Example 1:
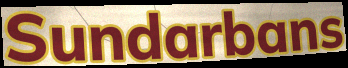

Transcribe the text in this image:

Sundarbans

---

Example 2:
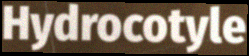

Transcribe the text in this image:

Hydrocotyle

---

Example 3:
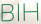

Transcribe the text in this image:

BIH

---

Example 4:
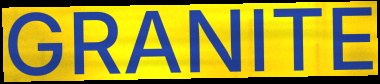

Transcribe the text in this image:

GRANITE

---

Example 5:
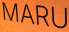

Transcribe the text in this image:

MARU